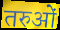
तरुओं